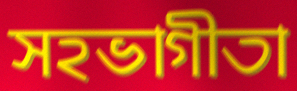
সহভাগীতা